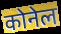
कोनेल